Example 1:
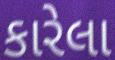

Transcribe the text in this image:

કારેલા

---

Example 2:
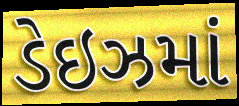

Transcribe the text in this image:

ડેઇઝમાં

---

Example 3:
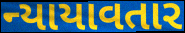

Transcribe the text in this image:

ન્યાયાવતાર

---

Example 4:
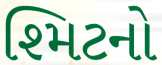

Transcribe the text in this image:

શ્મિટનો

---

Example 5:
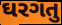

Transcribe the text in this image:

ઘરગતુ